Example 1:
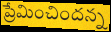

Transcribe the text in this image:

ప్రేమించిందన్న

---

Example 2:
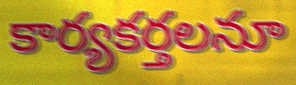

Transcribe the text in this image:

కార్యకర్తలనూ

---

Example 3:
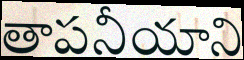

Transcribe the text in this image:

తాపనీయాని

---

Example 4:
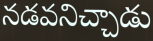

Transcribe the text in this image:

నడవనిచ్చాడు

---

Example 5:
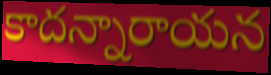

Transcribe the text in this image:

కాదన్నారాయన